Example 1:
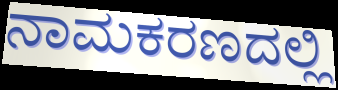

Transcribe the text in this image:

ನಾಮಕರಣದಲ್ಲಿ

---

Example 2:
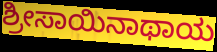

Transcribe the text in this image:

ಶ್ರೀಸಾಯಿನಾಥಾಯ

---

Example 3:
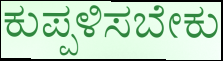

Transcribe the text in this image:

ಕುಪ್ಪಳಿಸಬೇಕು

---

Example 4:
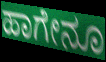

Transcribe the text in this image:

ಹಾಗೇನೂ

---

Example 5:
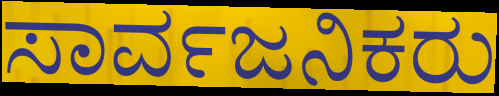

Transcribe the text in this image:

ಸಾರ್ವಜನಿಕರು